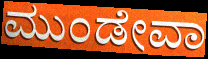
ಮುಂಡೇವಾ